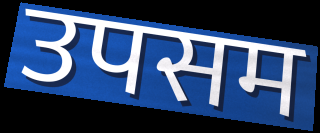
उपसम